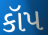
કૉપ